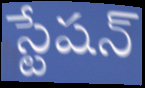
స్టేషన్